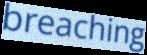
breaching